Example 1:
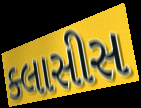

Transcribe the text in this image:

ક્લાસીસ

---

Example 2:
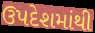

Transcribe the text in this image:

ઉપદેશમાંથી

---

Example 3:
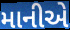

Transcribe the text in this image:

માનીએ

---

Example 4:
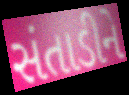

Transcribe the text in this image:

સંતાડીને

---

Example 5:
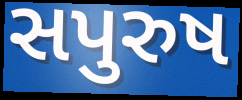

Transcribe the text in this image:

સપુરુષ